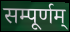
सम्पूर्णम्